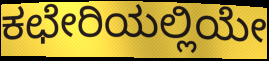
ಕಛೇರಿಯಲ್ಲಿಯೇ